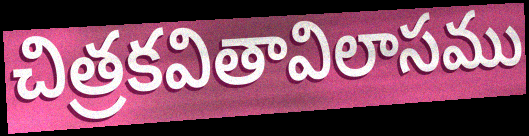
చిత్రకవితావిలాసము